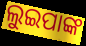
ଲୁଇପାଙ୍କ